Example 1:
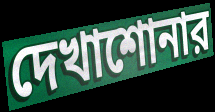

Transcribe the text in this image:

দেখাশোনার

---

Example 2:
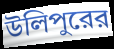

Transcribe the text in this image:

উলিপুরের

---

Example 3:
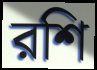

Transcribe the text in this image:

রশি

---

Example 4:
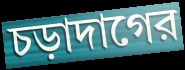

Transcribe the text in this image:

চড়াদাগের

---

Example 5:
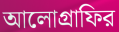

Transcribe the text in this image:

আলোগ্রাফির